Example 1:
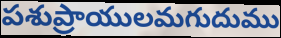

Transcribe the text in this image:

పశుప్రాయులమగుదుము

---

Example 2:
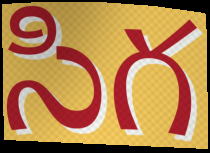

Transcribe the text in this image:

సిగ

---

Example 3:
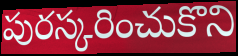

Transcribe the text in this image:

పురస్కరించుకొని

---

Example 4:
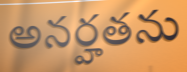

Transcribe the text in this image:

అనర్హతను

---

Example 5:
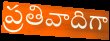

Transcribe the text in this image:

ప్రతివాదిగా